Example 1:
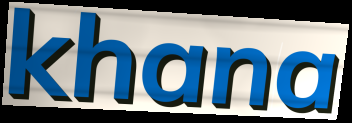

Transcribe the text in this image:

khana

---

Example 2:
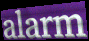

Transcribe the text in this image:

alarm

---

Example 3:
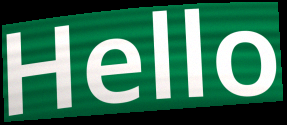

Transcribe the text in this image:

Hello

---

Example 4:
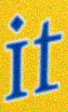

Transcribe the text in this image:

it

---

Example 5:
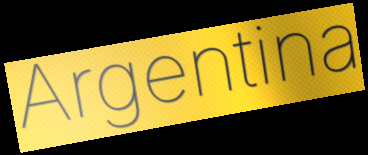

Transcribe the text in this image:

Argentina